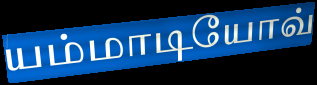
யம்மாடியோவ்